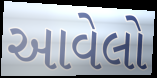
આવેલો